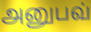
அனுபவ்